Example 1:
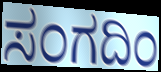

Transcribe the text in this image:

ಸಂಗದಿಂ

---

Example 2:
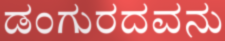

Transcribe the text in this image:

ಡಂಗುರದವನು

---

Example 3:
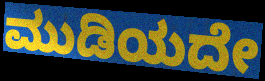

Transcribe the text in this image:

ಮುಡಿಯದೇ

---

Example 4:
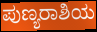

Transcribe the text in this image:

ಪುಣ್ಯರಾಶಿಯ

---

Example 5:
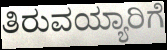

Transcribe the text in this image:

ತಿರುವಯ್ಯಾರಿಗೆ